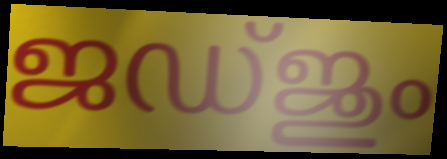
ജഡ്ജും